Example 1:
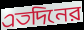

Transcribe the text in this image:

এতদিনের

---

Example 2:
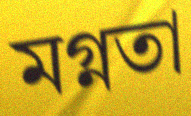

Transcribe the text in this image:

মগ্নতা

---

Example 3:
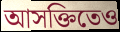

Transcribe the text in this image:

আসক্তিতেও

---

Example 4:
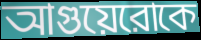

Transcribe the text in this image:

আগুয়েরোকে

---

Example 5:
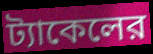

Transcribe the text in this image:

ট্যাকেলের